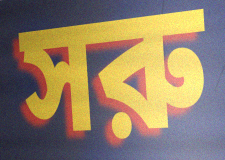
সরু